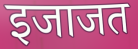
इजाजत